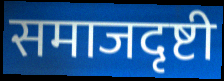
समाजदृष्टी